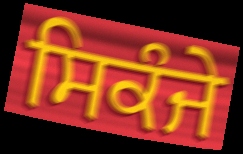
ਸਿਕੰਜੇ